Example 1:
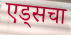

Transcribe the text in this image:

एड्सचा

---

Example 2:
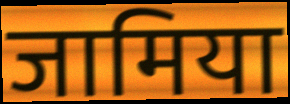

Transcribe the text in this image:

जामिया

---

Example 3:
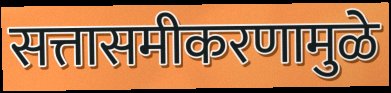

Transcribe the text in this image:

सत्तासमीकरणामुळे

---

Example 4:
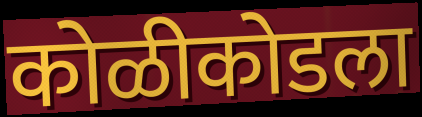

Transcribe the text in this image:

कोळीकोडला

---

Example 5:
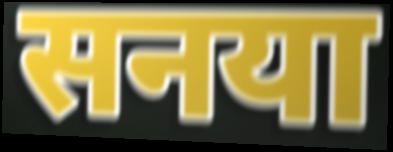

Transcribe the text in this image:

सनया